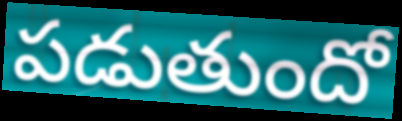
పడుతుందో